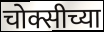
चोक्सीच्या